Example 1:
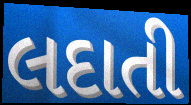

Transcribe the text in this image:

લદાતી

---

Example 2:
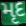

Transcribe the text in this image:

મૃદ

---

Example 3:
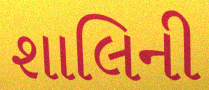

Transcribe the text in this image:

શાલિની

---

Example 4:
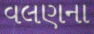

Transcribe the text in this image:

વલણના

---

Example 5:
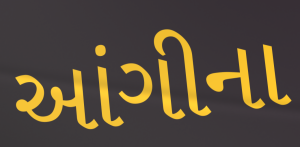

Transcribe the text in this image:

આંગીના